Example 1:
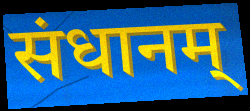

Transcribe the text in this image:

संधानम्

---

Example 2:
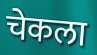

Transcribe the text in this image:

चेकला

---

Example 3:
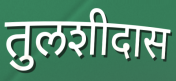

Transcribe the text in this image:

तुलशीदास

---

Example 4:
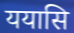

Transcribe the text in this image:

ययासि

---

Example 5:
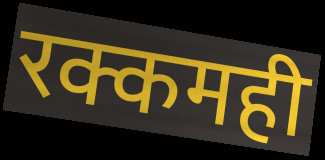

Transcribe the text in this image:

रक्कमही